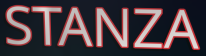
STANZA